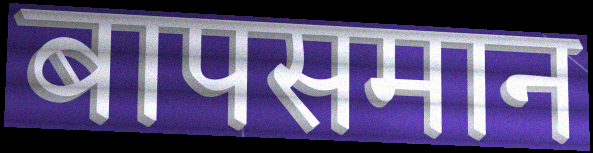
बापसमान